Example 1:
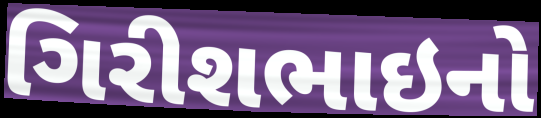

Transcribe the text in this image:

ગિરીશભાઇનો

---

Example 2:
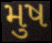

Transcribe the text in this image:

મુષ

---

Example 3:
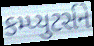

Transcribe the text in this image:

કમ્પ્યુટર્સને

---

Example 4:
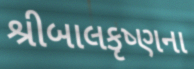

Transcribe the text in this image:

શ્રીબાલકૃષ્ણના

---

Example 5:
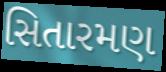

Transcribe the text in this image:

સિતારમણ